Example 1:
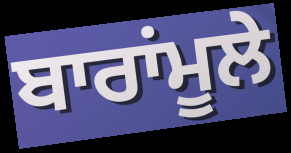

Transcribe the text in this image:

ਬਾਰਾਂਮੂਲੇ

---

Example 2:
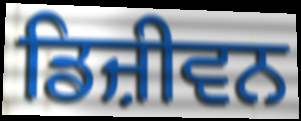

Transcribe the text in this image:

ਡਿਜ਼ੀਵਨ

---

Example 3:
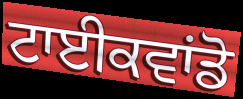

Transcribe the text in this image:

ਟਾਈਕਵਾਂਡੋ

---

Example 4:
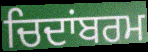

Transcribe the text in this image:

ਚਿਦਾਂਬਰਮ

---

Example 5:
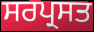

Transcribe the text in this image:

ਸਰਪ੍ਰਸਤ